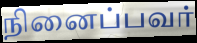
நினைப்பவர்